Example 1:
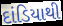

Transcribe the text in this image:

દાંડિયાથી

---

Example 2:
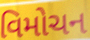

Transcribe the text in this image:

વિમોચન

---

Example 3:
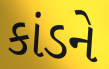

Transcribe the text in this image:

કાંડને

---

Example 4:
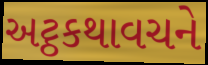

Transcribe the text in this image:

અટ્ઠકથાવચને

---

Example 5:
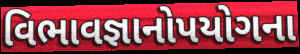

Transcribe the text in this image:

વિભાવજ્ઞાનોપયોગના